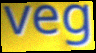
veg